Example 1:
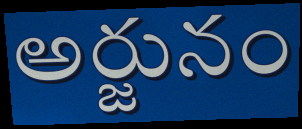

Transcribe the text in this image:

అర్జునం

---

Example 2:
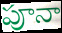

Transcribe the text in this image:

పూనా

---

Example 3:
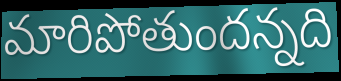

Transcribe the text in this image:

మారిపోతుందన్నది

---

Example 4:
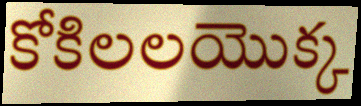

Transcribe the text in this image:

కోకిలలయొక్క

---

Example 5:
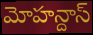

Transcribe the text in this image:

మోహన్దాస్